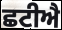
ਛਟੀਐ